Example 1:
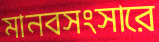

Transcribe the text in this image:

মানবসংসারে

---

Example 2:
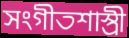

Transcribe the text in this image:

সংগীতশাস্ত্রী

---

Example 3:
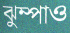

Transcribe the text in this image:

ঝুম্পাও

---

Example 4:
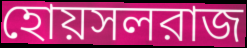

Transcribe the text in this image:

হোয়সলরাজ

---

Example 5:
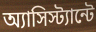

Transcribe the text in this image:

অ্যাসিস্ট্যান্টে